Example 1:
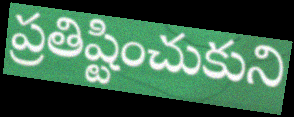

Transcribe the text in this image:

ప్రతిష్టించుకుని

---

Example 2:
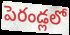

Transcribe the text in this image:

పెరండ్లలో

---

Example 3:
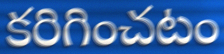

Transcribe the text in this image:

కరిగించటం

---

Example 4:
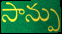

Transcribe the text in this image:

సాన్పు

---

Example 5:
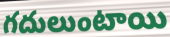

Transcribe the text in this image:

గదులుంటాయి